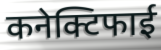
कनेक्टिफाई